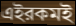
এইরকমই